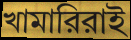
খামারিরাই